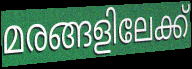
മരങ്ങളിലേക്ക്